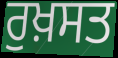
ਰੁਖ਼ਸਤ